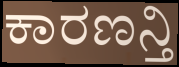
ಕಾರಣನ್ತಿ